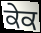
ਕੇਕ